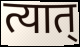
त्यात्